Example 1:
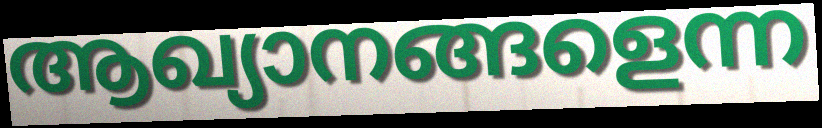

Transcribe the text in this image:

ആഖ്യാനങ്ങളെന്ന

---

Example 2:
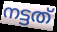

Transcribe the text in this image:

നട്ടത്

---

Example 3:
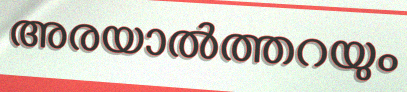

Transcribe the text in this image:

അരയാൽത്തറയും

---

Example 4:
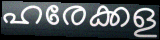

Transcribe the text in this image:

ഹരേക്കള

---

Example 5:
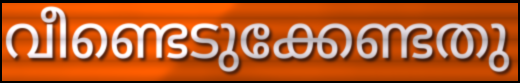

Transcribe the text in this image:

വീണ്ടെടുക്കേണ്ടതു